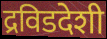
द्रविडदेशी